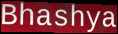
Bhashya